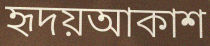
হৃদয়আকাশ